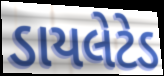
ડાયલેટેડ